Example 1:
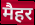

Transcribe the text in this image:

मैहर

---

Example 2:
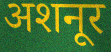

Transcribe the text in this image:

अशनूर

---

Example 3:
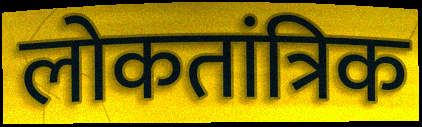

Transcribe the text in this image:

लोकतांत्रिक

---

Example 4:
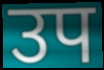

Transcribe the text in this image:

उप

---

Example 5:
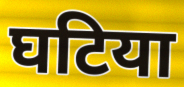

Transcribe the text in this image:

घटिया